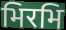
भिरभि